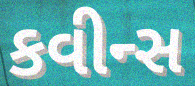
કવીન્સ